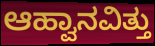
ಆಹ್ವಾನವಿತ್ತು